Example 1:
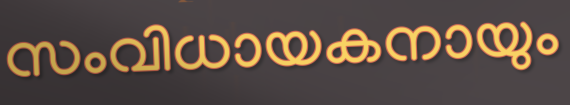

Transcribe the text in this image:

സംവിധായകനായും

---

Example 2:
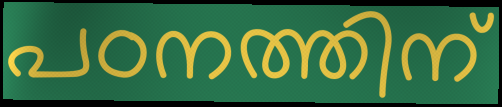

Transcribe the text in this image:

പഠനത്തിന്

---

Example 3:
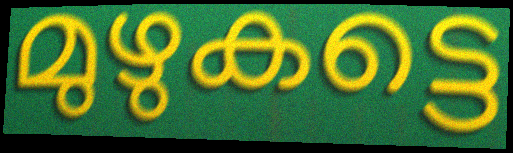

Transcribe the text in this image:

മുഴുകട്ടെ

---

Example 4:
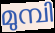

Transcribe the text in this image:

മുമ്പി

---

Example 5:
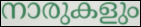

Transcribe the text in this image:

നാരുകളും